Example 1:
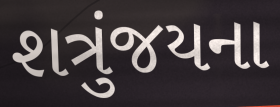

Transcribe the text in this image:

શત્રુંજયના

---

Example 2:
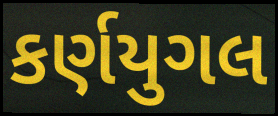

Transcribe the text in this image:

કર્ણયુગલ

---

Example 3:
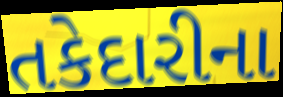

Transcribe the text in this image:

તકેદારીના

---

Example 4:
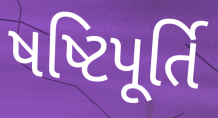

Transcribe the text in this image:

ષષ્ટિપૂર્તિ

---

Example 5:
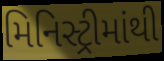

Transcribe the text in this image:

મિનિસ્ટ્રીમાંથી